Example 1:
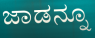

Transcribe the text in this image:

ಜಾಡನ್ನೂ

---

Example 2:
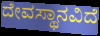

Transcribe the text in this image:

ದೇವಸ್ಥಾನವಿದೆ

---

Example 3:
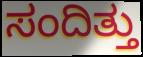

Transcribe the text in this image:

ಸಂದಿತ್ತು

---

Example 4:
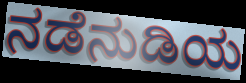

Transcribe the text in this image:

ನಡೆನುಡಿಯ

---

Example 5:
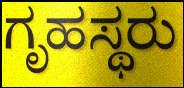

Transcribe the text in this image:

ಗೃಹಸ್ಥರು